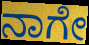
ನಾಗೇ